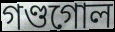
গণ্ডগোল